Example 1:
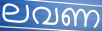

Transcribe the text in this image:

ലവണ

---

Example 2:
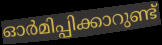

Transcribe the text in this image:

ഓർമിപ്പിക്കാറുണ്ട്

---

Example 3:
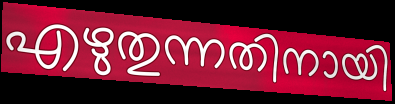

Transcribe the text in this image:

എഴുതുന്നതിനായി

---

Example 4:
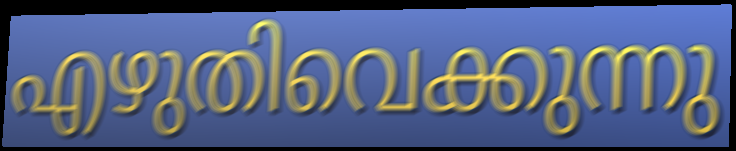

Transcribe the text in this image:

എഴുതിവെക്കുന്നു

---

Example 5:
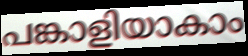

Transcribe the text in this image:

പങ്കാളിയാകാം